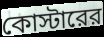
কোস্টারের